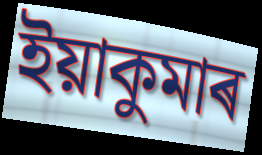
ইয়াকুমাৰ